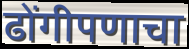
ढोंगीपणाचा